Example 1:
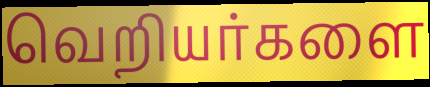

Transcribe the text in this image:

வெறியர்களை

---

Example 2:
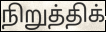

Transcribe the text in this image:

நிறுத்திக்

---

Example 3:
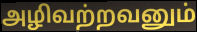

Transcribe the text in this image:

அழிவற்றவனும்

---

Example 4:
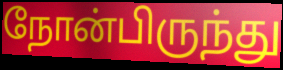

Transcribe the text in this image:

நோன்பிருந்து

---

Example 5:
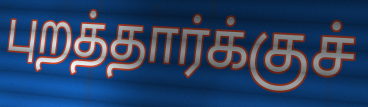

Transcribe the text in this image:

புறத்தார்க்குச்